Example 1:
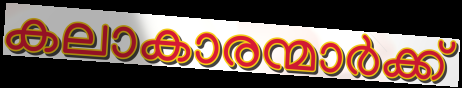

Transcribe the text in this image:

കലാകാരന്മാർക്ക്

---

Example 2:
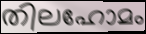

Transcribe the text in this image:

തിലഹോമം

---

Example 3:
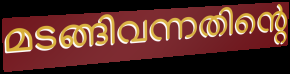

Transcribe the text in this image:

മടങ്ങിവന്നതിന്റെ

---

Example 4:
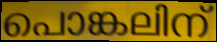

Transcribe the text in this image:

പൊങ്കലിന്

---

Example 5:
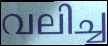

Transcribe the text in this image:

വലിച്ച